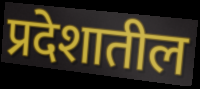
प्रदेशातील